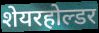
शेयरहोल्डर